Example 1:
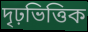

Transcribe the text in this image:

দৃঢ়ভিত্তিক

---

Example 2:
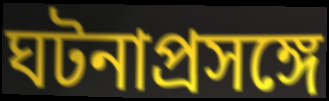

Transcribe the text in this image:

ঘটনাপ্রসঙ্গে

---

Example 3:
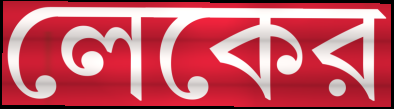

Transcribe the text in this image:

লেকের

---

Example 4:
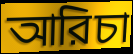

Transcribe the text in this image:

আরিচা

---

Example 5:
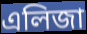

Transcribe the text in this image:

এলিজা